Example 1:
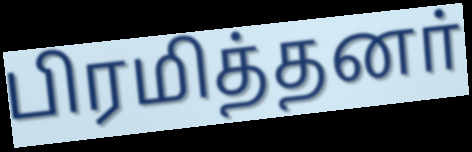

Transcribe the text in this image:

பிரமித்தனர்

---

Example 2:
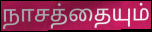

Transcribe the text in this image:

நாசத்தையும்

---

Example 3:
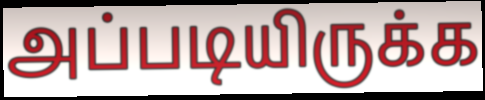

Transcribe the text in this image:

அப்படியிருக்க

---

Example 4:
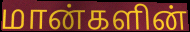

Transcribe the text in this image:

மான்களின்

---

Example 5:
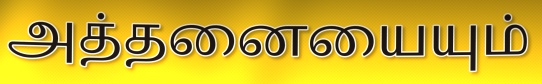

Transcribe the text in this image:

அத்தனையையும்